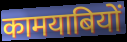
कामयाबियों